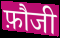
फ़ौजी